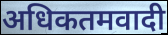
अधिकतमवादी